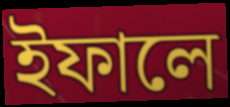
ইফালে